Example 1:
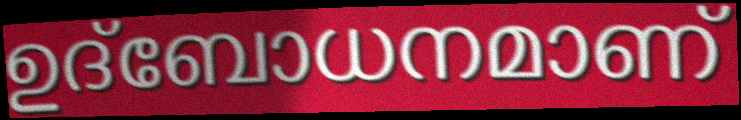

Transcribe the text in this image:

ഉദ്ബോധനമാണ്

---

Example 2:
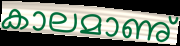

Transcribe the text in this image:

കാലമാണു്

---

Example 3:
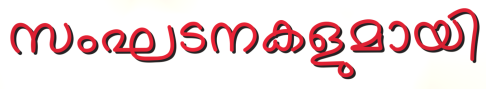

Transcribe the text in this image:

സംഘടനകളുമായി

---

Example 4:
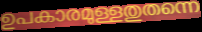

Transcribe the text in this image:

ഉപകാരമുള്ളതുതന്നെ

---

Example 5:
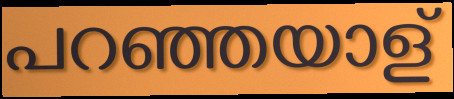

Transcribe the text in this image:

പറഞ്ഞയാള്